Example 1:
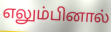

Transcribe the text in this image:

எலும்பினால்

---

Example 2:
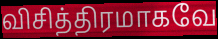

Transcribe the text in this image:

விசித்திரமாகவே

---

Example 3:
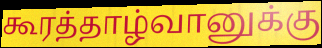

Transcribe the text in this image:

கூரத்தாழ்வானுக்கு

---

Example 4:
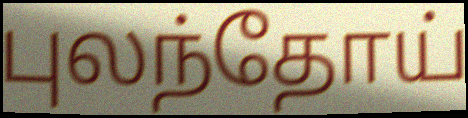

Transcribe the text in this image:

புலந்தோய்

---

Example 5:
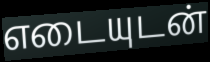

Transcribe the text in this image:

எடையுடன்